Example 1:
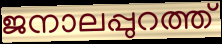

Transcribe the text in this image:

ജനാലപ്പുറത്ത്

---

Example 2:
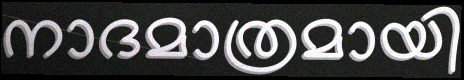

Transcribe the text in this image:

നാദമാത്രമായി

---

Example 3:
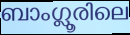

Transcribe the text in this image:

ബാംഗ്ലൂരിലെ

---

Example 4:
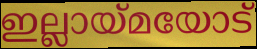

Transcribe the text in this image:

ഇല്ലായ്മയോട്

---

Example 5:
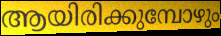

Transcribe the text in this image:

ആയിരിക്കുമ്പോഴും